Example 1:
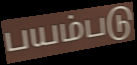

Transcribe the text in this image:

பயம்படு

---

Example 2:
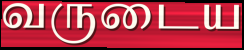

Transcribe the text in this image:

வருடைய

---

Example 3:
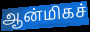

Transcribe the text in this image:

ஆன்மிகச்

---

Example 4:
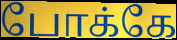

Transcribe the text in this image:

போக்கே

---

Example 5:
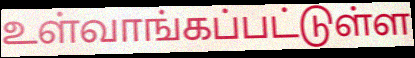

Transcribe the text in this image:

உள்வாங்கப்பட்டுள்ள